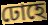
ঢোহে